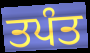
ਤਪੰਤ